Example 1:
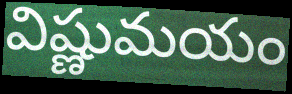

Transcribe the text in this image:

విష్ణుమయం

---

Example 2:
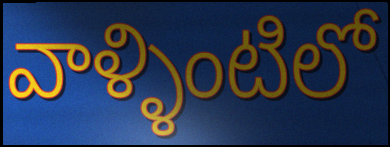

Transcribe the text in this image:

వాళ్ళింటిలో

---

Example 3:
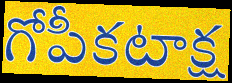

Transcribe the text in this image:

గోపీకటాక్ష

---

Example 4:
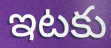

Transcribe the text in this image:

ఇటకు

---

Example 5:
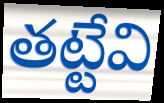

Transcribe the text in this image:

తట్టేవి